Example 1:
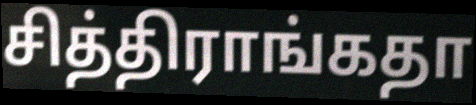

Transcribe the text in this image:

சித்திராங்கதா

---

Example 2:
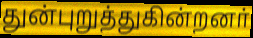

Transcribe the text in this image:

துன்புறுத்துகின்றனர்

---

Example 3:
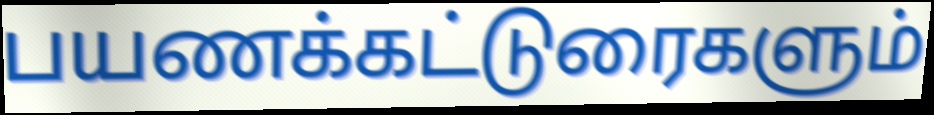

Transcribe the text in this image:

பயணக்கட்டுரைகளும்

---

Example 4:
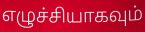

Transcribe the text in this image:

எழுச்சியாகவும்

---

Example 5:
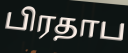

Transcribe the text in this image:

பிரதாப